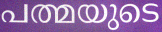
പത്മയുടെ